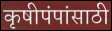
कृषीपंपांसाठी